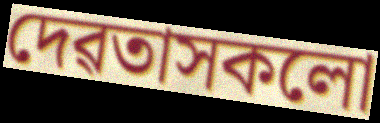
দেৱতাসকলো